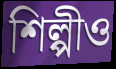
শিল্পীও